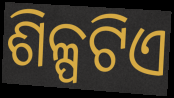
ଶିଳ୍ପଟିଏ